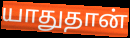
யாதுதான்